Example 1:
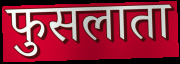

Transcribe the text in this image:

फुसलाता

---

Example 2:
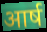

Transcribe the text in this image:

आर्ष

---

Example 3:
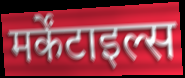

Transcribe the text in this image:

मर्केंटाइल्स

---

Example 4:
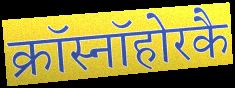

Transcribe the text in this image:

क्रॉस्नॉहोरकै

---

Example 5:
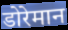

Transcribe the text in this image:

डोरेमान